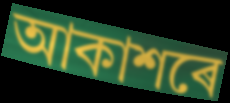
আকাশৰে